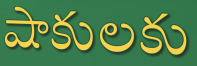
షాకులకు